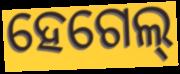
ହେଗେଲ୍